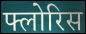
फ्लोरिस